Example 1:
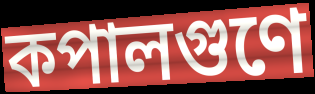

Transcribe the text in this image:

কপালগুণে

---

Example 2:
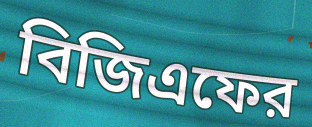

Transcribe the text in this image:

বিজিএফের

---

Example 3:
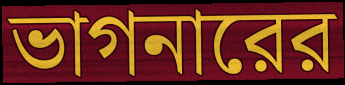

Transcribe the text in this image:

ভাগনারের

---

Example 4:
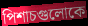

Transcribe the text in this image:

পিশাচগুলোকে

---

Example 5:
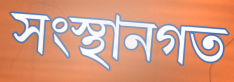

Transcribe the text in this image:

সংস্থানগত